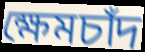
ক্ষেমচাঁদ